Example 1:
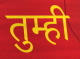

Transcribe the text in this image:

तुम्ही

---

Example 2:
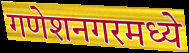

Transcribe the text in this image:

गणेशनगरमध्ये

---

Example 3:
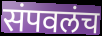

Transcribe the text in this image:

संपवलंच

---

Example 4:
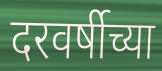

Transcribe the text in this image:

दरवर्षीच्या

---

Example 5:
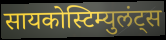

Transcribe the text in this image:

सायकोस्टिम्युलंट्स